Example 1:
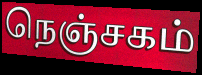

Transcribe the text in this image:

நெஞ்சகம்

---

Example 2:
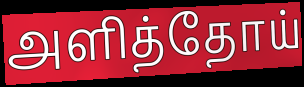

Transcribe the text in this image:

அளித்தோய்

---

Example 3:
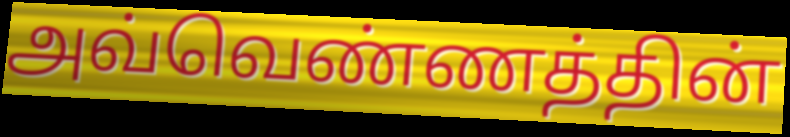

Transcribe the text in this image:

அவ்வெண்ணத்தின்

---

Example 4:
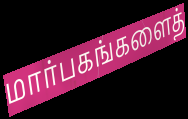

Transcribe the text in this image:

மார்பகங்களைத்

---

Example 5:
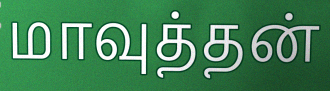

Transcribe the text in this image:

மாவுத்தன்